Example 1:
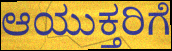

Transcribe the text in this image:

ಆಯುಕ್ತರಿಗೆ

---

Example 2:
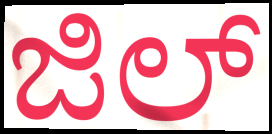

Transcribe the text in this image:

ಜಿಲ್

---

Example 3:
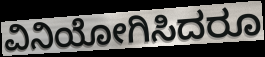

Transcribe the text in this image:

ವಿನಿಯೋಗಿಸಿದರೂ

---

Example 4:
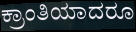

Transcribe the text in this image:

ಕ್ರಾಂತಿಯಾದರೂ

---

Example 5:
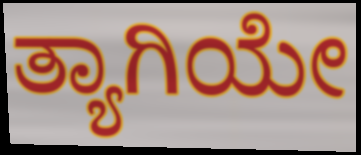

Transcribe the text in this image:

ತ್ಯಾಗಿಯೇ